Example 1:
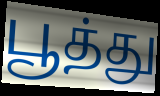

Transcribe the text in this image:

பூத்து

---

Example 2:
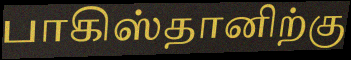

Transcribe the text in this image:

பாகிஸ்தானிற்கு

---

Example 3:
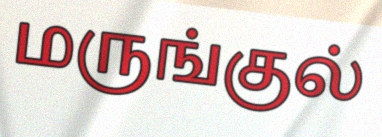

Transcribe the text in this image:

மருங்குல்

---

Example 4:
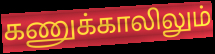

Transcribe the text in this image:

கணுக்காலிலும்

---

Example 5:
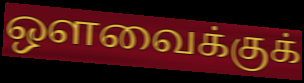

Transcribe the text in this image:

ஔவைக்குக்